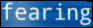
fearing